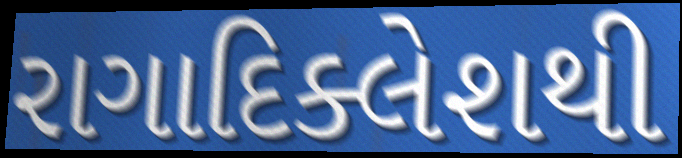
રાગાદિક્લેશથી